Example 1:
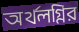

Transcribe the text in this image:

অর্থলগ্নির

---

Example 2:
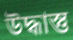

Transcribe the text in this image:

উদ্ধাস্তু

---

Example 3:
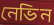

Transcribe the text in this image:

নেভিন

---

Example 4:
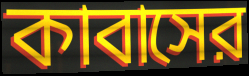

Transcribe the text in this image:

কাবাসের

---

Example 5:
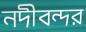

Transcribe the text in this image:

নদীবন্দর